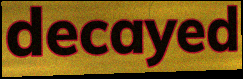
decayed